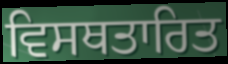
ਵਿਸਥਤਾਰਿਤ